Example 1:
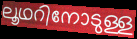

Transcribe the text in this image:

ലൂഥറിനോടുള്ള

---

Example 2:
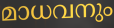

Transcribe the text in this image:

മാധവനും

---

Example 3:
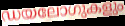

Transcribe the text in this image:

ഡയലോഗുകളും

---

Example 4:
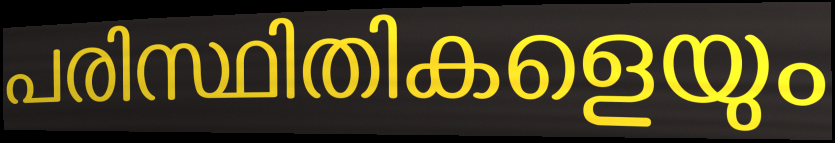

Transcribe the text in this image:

പരിസ്ഥിതികളെയും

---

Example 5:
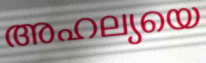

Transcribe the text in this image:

അഹല്യയെ